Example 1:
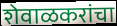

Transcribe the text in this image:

शेवाळकरांचा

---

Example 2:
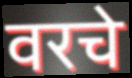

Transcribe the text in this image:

वरचे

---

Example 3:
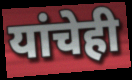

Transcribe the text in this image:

यांचेही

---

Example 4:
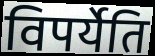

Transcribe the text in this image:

विपर्येति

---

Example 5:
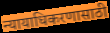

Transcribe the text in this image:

न्यायाधिकरणासाठी